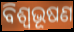
ବିଶ୍ବଭୂଷଣ